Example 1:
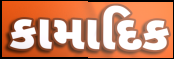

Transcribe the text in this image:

કામાદિક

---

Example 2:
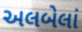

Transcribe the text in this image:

અલબેલાં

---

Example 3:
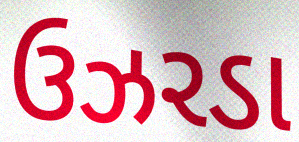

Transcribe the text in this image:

ઉઝરડા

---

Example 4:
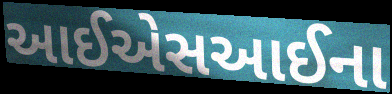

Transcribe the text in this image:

આઈએસઆઈના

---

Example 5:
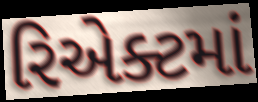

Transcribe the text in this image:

રિએક્ટમાં